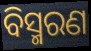
ବିସ୍ମରଣ